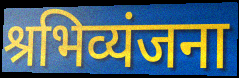
श्रभिव्यंजना